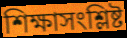
শিক্ষাসংশ্লিষ্ট